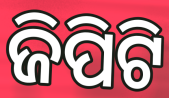
ଜିପିଟି